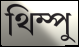
থিম্পু